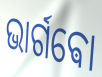
ଭାର୍ଗଵୋ